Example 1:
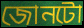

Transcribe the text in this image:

জোনটো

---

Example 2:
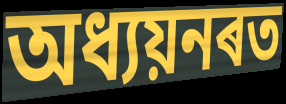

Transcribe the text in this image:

অধ্যয়নৰত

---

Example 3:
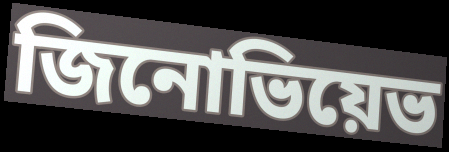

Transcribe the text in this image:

জিনোভিয়েভ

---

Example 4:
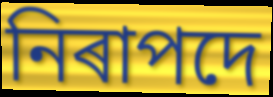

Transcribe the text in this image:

নিৰাপদে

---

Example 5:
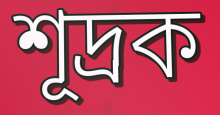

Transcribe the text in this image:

শূদ্ৰক